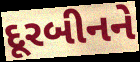
દૂરબીનને